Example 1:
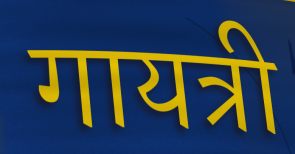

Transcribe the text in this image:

गायत्री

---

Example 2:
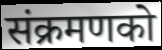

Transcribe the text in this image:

संक्रमणको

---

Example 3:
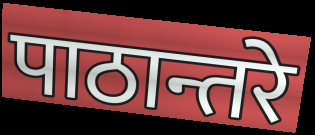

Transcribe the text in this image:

पाठान्तरे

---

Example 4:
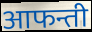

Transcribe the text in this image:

आफन्ती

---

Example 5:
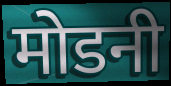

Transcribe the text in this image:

मोडनी